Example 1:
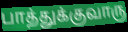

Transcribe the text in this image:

பாத்துக்குவாரு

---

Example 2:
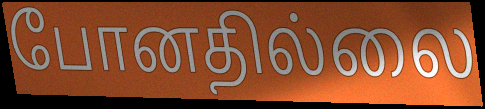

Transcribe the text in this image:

போனதில்லை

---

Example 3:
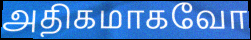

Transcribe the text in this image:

அதிகமாகவோ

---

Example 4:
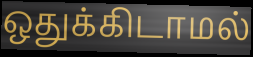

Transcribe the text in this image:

ஒதுக்கிடாமல்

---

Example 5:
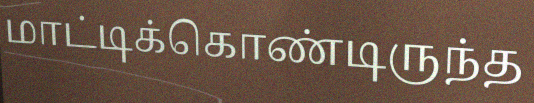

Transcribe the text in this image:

மாட்டிக்கொண்டிருந்த